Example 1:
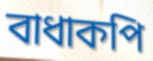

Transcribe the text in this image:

বাধাকপি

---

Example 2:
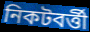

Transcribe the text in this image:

নিকটবর্ত্তী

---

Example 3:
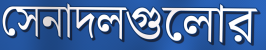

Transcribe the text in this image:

সেনাদলগুলোর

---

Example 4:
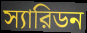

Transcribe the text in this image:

স্যারিডন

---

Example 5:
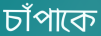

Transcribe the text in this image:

চাঁপাকে